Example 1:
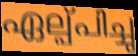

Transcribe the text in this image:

ഏല്പ്പിച്ചു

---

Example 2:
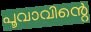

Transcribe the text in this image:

പൂവാവിന്റെ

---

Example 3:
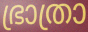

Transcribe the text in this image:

ഭ്രാത്രാ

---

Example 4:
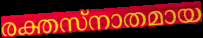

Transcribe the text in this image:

രക്തസ്നാതമായ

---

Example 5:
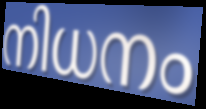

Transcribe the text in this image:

നിധനം